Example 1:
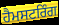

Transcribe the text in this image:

ਹੈਮਸਟਰਿੰਗ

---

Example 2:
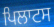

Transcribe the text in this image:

ਪਿਲਾਟਸ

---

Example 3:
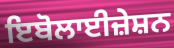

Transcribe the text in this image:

ਇਬੋਲਾਈਜ਼ੇਸ਼ਨ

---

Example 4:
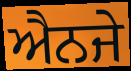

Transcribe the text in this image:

ਐਨਜੇ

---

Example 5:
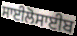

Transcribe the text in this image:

ਸਾਈਲੋਸਾਈਬ